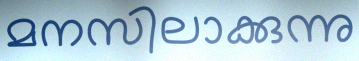
മനസിലാക്കുന്നു